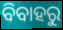
ବିବାହରୁ